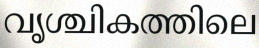
വൃശ്ചികത്തിലെ